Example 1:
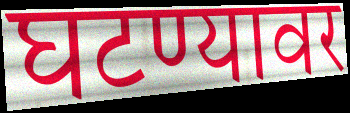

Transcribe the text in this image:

घटण्यावर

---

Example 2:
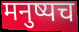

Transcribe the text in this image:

मनुष्यच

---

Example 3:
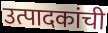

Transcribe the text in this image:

उत्पादकांची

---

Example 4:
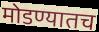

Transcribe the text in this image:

मोडण्यातच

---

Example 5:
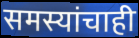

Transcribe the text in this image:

समस्यांचाही